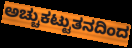
ಅಚ್ಚುಕಟ್ಟುತನದಿಂದ